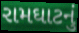
રામઘાટનું